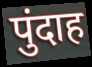
पुंदाह